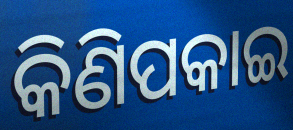
କିଣିପକାଇ